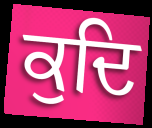
ਕੁਦਿ